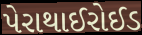
પેરાથાઈરોઈડ